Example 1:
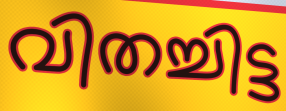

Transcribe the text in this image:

വിതച്ചിട്ട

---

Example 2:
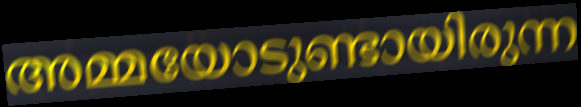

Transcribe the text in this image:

അമ്മയോടുണ്ടായിരുന്ന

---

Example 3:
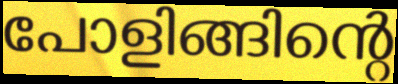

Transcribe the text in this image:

പോളിങ്ങിന്റെ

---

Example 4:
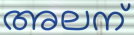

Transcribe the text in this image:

അലന്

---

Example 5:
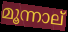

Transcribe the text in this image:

മൂന്നാല്